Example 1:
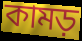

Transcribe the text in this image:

কামড়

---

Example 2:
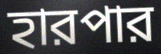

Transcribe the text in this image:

হারপার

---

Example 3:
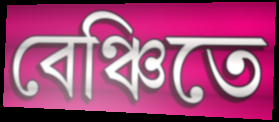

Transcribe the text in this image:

বেঞ্চিতে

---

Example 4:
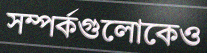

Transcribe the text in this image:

সম্পর্কগুলোকেও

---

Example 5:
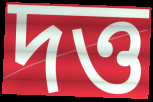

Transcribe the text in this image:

দত্ত